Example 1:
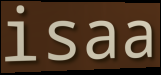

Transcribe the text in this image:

isaa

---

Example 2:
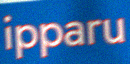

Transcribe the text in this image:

ipparu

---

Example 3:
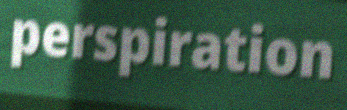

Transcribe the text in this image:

perspiration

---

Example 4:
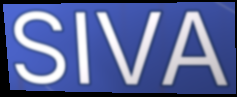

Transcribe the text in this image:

SIVA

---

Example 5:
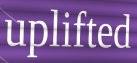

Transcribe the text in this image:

uplifted